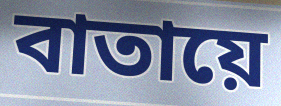
বাতায়ে